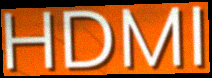
HDMI